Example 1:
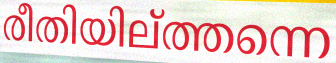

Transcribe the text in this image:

രീതിയില്ത്തന്നെ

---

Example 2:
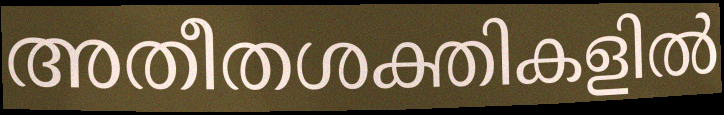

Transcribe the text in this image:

അതീതശക്തികളിൽ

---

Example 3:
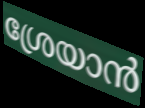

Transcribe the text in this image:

ശ്രേയാൻ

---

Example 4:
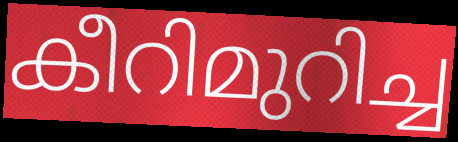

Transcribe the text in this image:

കീറിമുറിച്ച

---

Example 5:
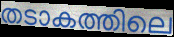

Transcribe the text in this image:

തടാകത്തിലെ